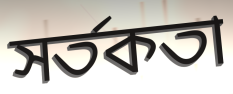
সর্তকতা